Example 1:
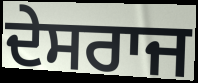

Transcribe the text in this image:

ਦੇਸਰਾਜ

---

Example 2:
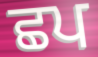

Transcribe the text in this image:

ਛਪ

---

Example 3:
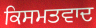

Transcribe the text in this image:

ਕਿਸਮਤਵਾਦ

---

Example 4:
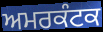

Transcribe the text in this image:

ਅਮਰਕੰਟਕ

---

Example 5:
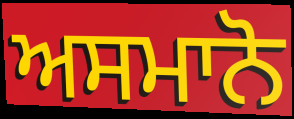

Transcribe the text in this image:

ਅਸਮਾਨੋ